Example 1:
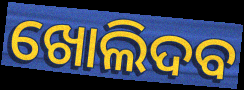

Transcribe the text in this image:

ଖୋଲିଦବ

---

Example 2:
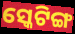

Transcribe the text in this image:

ସ୍କେଟିଙ୍ଗ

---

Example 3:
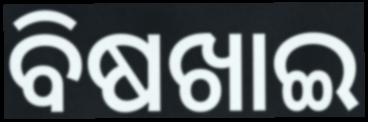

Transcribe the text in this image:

ବିଷଖାଇ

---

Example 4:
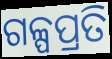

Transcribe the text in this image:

ଗଳ୍ପପ୍ରତି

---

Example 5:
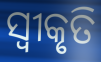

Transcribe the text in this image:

ସ୍ୱୀକୃତି